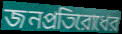
জনপ্রতিরোধের